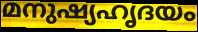
മനുഷ്യഹൃദയം